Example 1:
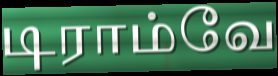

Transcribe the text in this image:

டிராம்வே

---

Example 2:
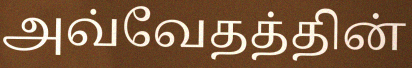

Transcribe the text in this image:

அவ்வேதத்தின்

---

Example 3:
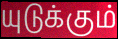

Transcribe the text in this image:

யுடுக்கும்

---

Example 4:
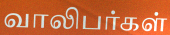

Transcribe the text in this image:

வாலிபர்கள்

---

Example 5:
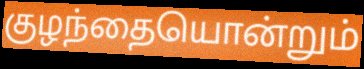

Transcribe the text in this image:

குழந்தையொன்றும்